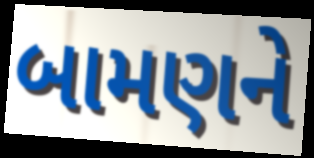
બામણને